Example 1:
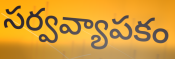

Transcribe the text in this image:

సర్వవ్యాపకం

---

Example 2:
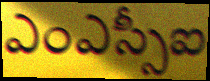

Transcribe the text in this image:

ఎంఎస్సీఐ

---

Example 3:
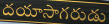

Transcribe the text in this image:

దయాసాగరుడు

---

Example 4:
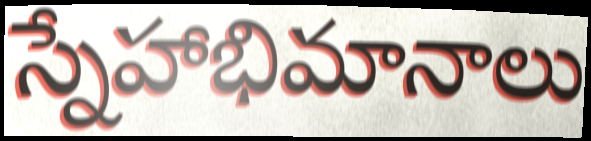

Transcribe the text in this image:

స్నేహాభిమానాలు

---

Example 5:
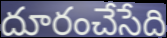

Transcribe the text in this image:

దూరంచేసేది